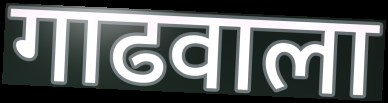
गाढवाला